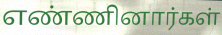
எண்ணினார்கள்